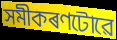
সমীকৰণটোৱে